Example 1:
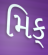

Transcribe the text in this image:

મિક્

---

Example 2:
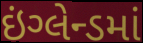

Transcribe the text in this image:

ઇંગ્લેન્ડમાં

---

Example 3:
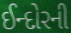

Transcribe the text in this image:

ઈન્દોરની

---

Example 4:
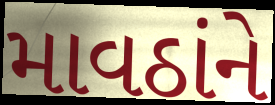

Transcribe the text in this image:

માવઠાંને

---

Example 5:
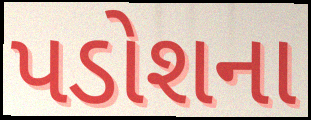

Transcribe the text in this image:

પડોશના